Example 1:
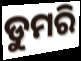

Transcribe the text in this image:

ଡୁମରି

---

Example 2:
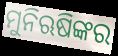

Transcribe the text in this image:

ମୁନିଋଷିଙ୍କର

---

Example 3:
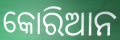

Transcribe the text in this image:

କୋରିଆନ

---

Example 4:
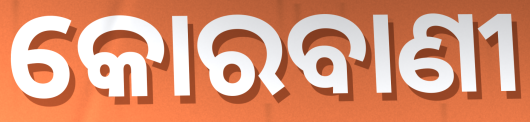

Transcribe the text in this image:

କୋରବାଣୀ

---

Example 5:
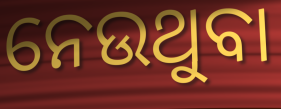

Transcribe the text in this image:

ନେଉଥୁବା